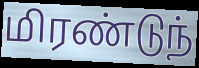
மிரண்டுந்